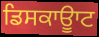
ਡਿਸਕਾਊਾਟ